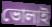
ভোলাই